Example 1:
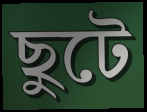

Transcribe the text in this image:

ছুটে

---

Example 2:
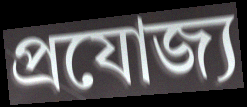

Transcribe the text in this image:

প্রযোজ্য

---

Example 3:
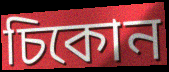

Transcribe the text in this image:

চিকোন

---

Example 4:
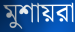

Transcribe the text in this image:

মুশায়রা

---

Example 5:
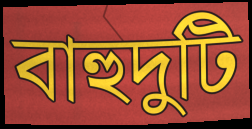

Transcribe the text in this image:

বাহুদুটি